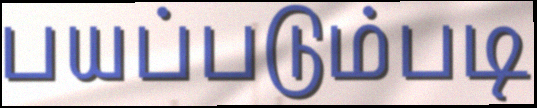
பயப்படும்படி